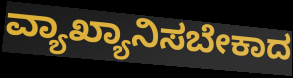
ವ್ಯಾಖ್ಯಾನಿಸಬೇಕಾದ